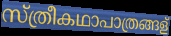
സ്ത്രീകഥാപാത്രങ്ങള്